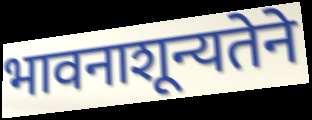
भावनाशून्यतेने